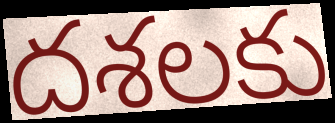
దశలకు